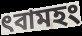
ৎবামহং